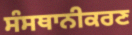
ਸੰਸਥਾਨੀਕਰਣ